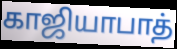
காஜியாபாத்